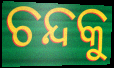
ଚନ୍ଦକୁ